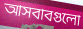
আসবাবগুলো